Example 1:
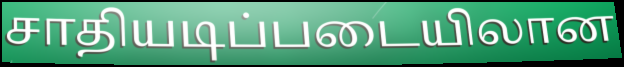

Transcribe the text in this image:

சாதியடிப்படையிலான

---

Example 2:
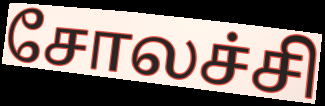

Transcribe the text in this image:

சோலச்சி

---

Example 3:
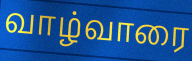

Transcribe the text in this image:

வாழ்வாரை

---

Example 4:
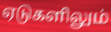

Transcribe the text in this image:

ஏடுகளிலும்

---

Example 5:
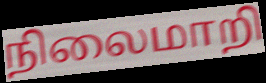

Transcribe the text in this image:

நிலைமாறி